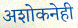
अशोकनेही